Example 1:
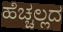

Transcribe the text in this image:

ಹೆಚ್ಚಲ್ಲದ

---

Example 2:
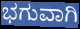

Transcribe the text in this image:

ಭಗುವಾಗಿ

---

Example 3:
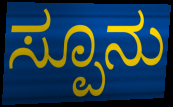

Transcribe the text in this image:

ಸ್ಪೂನು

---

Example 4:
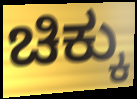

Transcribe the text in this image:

ಚಿಕ್ಕು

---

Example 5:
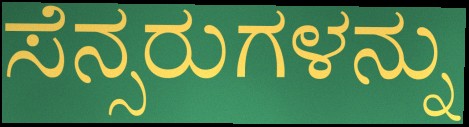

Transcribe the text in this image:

ಸೆನ್ಸರುಗಳನ್ನು